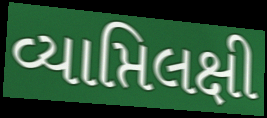
વ્યાપ્તિલક્ષી